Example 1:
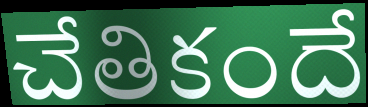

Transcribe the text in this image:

చేతికందే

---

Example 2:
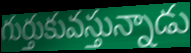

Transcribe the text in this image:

గుర్తుకువస్తున్నాడు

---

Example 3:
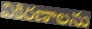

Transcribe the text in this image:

వికిరణాలను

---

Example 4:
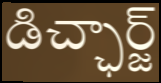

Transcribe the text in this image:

డిచ్ఛార్జ్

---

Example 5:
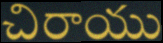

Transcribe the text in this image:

చిరాయు